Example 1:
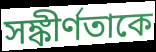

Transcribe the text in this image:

সঙ্কীর্ণতাকে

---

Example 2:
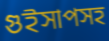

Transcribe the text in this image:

গুইসাপসহ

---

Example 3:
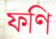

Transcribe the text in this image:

ফণি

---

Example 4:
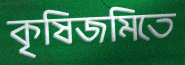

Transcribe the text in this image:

কৃষিজমিতে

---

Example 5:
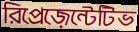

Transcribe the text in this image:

রিপ্রেজ়েন্টেটিভ